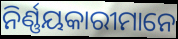
ନିର୍ଣ୍ଣୟକାରୀମାନେ